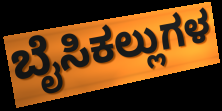
ಬೈಸಿಕಲ್ಲುಗಳ